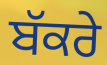
ਬੱਕਰੇ